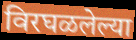
विरघळलेल्या